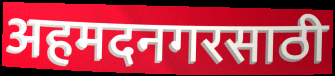
अहमदनगरसाठी